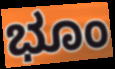
ಭೂಂ